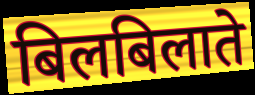
बिलबिलाते